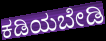
ಕಡಿಯಬೇಡಿ